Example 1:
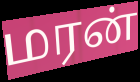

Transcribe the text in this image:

மரன்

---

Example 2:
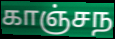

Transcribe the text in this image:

காஞ்சந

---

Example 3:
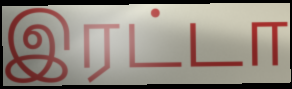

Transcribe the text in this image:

இரட்டா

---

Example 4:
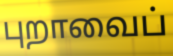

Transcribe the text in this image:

புறாவைப்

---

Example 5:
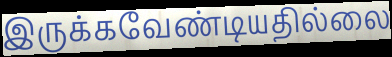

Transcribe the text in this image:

இருக்கவேண்டியதில்லை